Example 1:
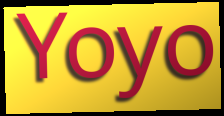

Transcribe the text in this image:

Yoyo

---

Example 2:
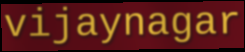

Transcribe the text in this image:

vijaynagar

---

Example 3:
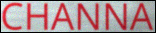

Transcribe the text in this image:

CHANNA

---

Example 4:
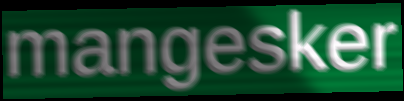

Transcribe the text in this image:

mangesker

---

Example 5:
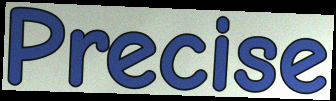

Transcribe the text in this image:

Precise